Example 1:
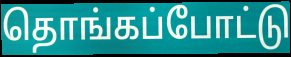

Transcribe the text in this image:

தொங்கப்போட்டு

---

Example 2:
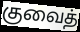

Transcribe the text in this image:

குவைத்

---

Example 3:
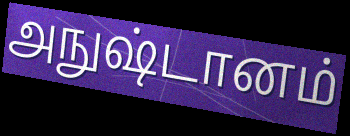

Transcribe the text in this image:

அநுஷ்டானம்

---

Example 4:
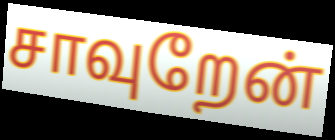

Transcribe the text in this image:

சாவுறேன்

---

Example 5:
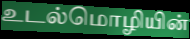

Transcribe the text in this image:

உடல்மொழியின்